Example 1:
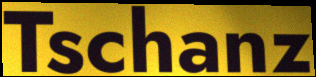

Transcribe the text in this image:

Tschanz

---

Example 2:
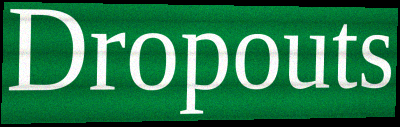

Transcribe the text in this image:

Dropouts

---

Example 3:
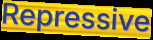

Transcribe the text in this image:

Repressive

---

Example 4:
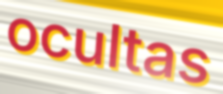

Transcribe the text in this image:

ocultas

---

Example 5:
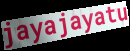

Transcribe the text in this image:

jayajayatu